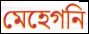
মেহেগনি